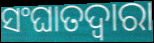
ସଂଘାତଦ୍ୱାରା